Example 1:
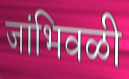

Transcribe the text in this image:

जांभिवळी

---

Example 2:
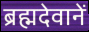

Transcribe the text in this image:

ब्रह्मदेवानें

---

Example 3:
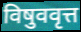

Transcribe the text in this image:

विषुववृत्त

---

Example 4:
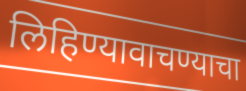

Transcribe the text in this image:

लिहिण्यावाचण्याचा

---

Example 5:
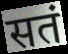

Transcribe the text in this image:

सतं